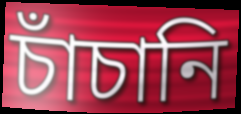
চাঁচানি